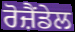
ਰੋਜ਼ੈਂਡੇਲ